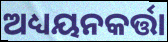
ଅଧ୍ୟୟନକର୍ତ୍ତା